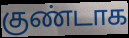
குண்டாக